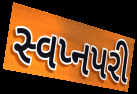
સ્વપ્નપરી